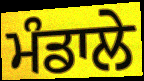
ਮੰਡਾਲੇ